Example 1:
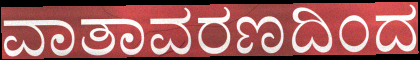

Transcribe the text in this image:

ವಾತಾವರಣದಿಂದ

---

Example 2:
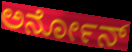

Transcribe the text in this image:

ಅರ್ನೋನ್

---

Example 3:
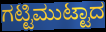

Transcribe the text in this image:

ಗಟ್ಟಿಮುಟ್ಟಾದ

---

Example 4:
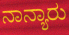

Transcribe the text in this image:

ನಾನ್ಯಾರು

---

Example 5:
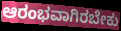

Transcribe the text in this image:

ಆರಂಭವಾಗಿರಬೇಕು